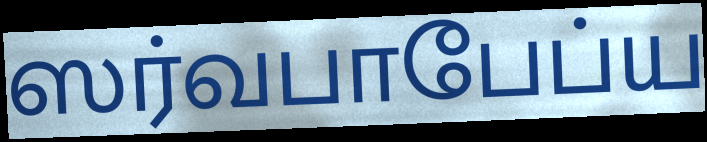
ஸர்வபாபேப்ய